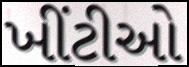
ખીંટીઓ